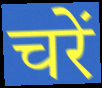
चरें